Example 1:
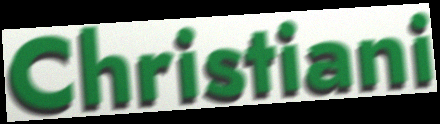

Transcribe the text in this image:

Christiani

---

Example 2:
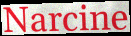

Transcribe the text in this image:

Narcine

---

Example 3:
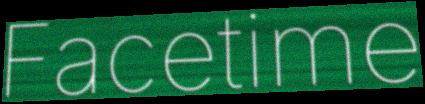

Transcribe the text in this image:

Facetime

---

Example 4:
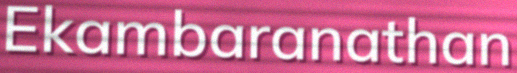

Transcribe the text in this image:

Ekambaranathan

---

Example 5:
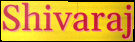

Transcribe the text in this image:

Shivaraj